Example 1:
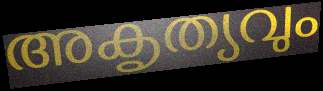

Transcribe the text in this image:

അകൃത്യവും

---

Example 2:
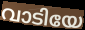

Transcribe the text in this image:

വാടിയേ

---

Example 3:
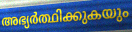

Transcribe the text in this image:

അഭ്യർത്ഥിക്കുകയും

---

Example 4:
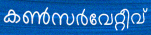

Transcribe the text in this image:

കൺസർവേറ്റീവ്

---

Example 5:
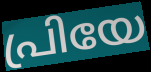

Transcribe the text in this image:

പ്രിയേ